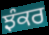
ਝੰਕਰ